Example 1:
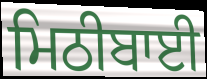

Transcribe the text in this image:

ਮਿਠੀਬਾਈ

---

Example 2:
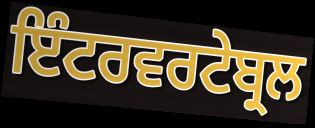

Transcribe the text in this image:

ਇੰਟਰਵਰਟੇਬ੍ਰਲ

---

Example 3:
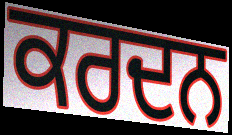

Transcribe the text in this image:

ਕਰਦਨ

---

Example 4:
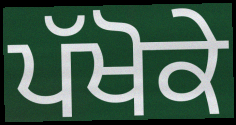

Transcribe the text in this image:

ਪੱਖੋਕੇ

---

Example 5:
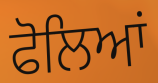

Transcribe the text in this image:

ਫੋਲਿਆਂ